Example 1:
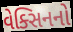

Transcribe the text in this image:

વેક્સિનનો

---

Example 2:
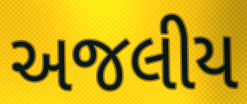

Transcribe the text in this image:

અજલીય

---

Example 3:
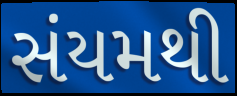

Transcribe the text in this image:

સંયમથી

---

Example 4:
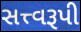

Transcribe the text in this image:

સત્ત્વરૂપી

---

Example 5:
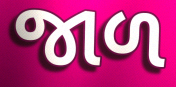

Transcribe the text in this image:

જાળ